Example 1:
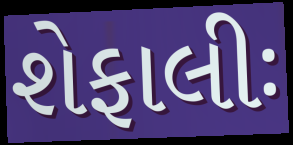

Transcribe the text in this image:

શેફાલીઃ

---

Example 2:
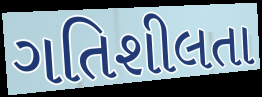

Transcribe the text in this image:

ગતિશીલતા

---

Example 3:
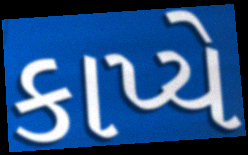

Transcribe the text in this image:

કાપ્યે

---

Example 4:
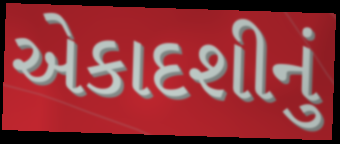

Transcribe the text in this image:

એકાદશીનું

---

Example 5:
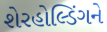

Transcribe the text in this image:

શેરહોલ્ડિંગને